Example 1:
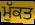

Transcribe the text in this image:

ਮੁੱਕਤ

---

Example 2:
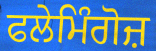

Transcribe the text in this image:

ਫਲੇਮਿੰਗੋਜ਼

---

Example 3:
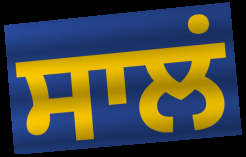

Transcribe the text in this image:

ਸਾਲਂ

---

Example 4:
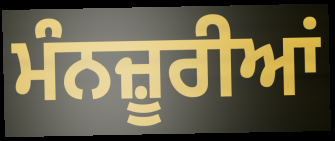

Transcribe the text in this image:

ਮੰਨਜ਼ੂਰੀਆਂ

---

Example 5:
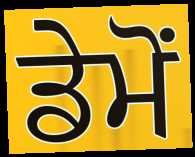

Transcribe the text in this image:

ਡੇਮੋਂ